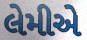
લેમીએ